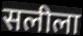
सलीला